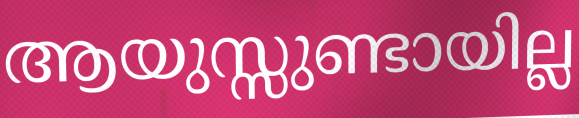
ആയുസ്സുണ്ടായില്ല